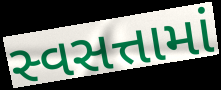
સ્વસત્તામાં